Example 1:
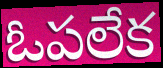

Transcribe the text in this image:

ఓపలేక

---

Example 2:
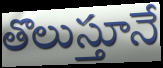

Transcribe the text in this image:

తొలుస్తూనే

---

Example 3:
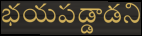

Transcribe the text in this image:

భయపడ్డాడని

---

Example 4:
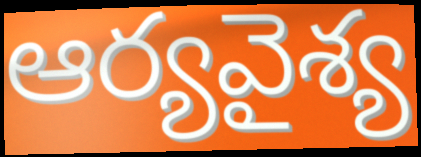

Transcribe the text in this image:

ఆర్యవైశ్య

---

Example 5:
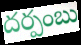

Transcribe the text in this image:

దర్పంబు